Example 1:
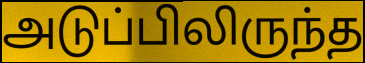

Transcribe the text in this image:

அடுப்பிலிருந்த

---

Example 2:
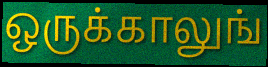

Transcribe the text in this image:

ஒருக்காலுங்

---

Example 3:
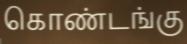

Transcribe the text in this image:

கொண்டங்கு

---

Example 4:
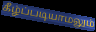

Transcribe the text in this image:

கீழ்ப்படியாமலும்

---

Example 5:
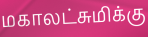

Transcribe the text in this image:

மகாலட்சுமிக்கு